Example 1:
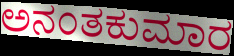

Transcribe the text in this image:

ಅನಂತಕುಮಾರ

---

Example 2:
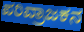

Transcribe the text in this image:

ಪರಿವ್ರಾಜಕನ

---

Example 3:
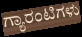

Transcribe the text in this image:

ಗ್ಯಾರಂಟಿಗಳು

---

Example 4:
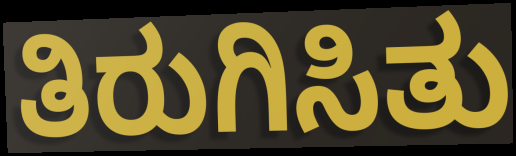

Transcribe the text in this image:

ತಿರುಗಿಸಿತು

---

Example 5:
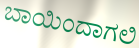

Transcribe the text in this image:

ಬಾಯಿಂದಾಗಲಿ